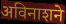
अविनाशने